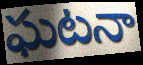
ఘటనా